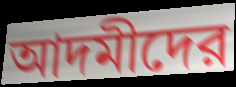
আদমীদের